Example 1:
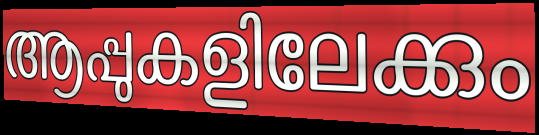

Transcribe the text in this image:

ആപ്പുകളിലേക്കും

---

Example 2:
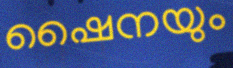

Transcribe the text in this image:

ഷൈനയും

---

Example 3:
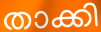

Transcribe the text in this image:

താക്കി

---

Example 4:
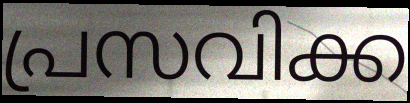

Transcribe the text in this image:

പ്രസവിക്ക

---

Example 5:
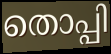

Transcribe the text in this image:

തൊപ്പി